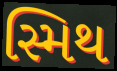
સ્મિથ